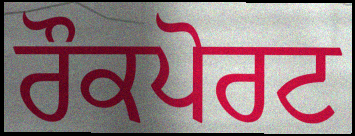
ਰੌਕਪੋਰਟ